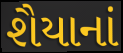
શૈયાનાં